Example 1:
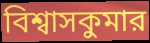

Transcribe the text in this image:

বিশ্বাসকুমার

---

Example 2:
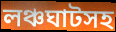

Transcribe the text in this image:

লঞ্চঘাটসহ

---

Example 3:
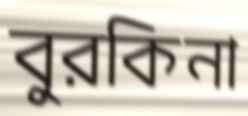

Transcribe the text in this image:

বুরকিনা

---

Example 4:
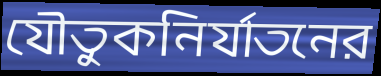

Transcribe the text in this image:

যৌতুকনির্যাতনের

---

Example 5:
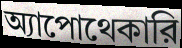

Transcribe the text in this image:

অ্যাপোথেকারি